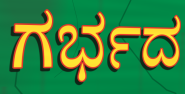
ಗರ್ಭದ